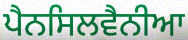
ਪੈਨਸਿਲਵੈਨੀਆ